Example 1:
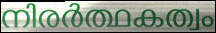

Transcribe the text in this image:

നിരർത്ഥകത്വം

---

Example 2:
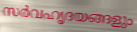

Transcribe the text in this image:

സർവഹൃദയങ്ങളും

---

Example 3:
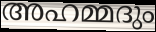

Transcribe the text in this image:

അഹമ്മദും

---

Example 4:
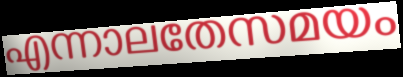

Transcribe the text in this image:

എന്നാലതേസമയം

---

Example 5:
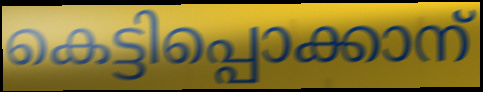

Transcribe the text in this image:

കെട്ടിപ്പൊക്കാന്